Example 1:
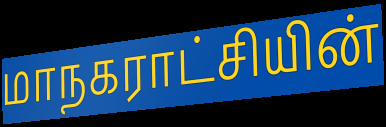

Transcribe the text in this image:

மாநகராட்சியின்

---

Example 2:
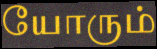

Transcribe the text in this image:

யோரும்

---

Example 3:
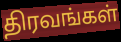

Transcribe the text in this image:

திரவங்கள்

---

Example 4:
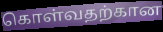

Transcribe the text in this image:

கொள்வதற்கான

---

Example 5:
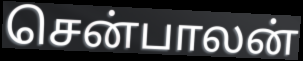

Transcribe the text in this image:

சென்பாலன்